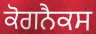
ਕੋਗਨੈਕਸ